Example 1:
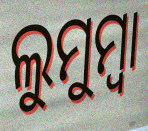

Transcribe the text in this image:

ଲୁମୁମ୍ବା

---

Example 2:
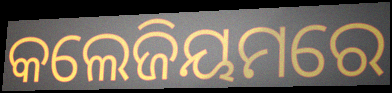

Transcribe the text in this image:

କଲେଜିୟମରେ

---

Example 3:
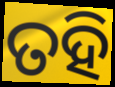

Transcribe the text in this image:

ତହି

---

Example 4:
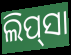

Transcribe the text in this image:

ଲିପ୍‌ସା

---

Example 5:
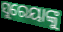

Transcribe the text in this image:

ସୁରେୟାଙ୍କୁ